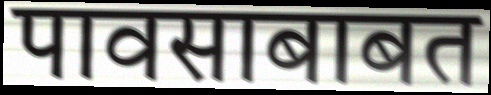
पावसाबाबत